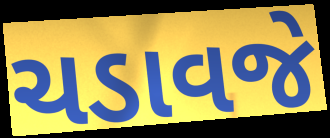
ચડાવજે